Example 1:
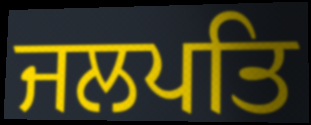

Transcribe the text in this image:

ਜਲਪਤਿ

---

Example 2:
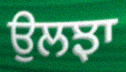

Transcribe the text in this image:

ਉਲਝਾ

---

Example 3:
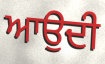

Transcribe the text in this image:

ਆਉਦੀ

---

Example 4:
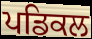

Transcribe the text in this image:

ਪਡਿਕਲ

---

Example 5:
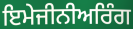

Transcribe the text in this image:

ਇਮੇਜੀਨੀਅਰਿੰਗ